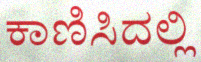
ಕಾಣಿಸಿದಲ್ಲಿ